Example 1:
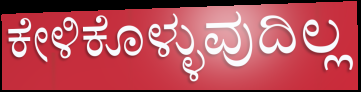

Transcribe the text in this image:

ಕೇಳಿಕೊಳ್ಳುವುದಿಲ್ಲ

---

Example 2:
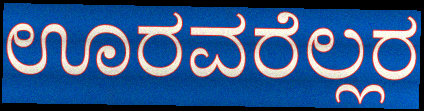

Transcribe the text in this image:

ಊರವರೆಲ್ಲರ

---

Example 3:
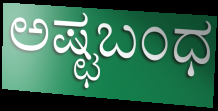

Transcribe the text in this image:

ಅಷ್ಟಬಂಧ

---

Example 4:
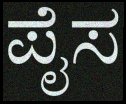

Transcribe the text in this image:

ಪೈಸ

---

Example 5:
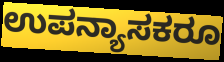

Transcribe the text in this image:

ಉಪನ್ಯಾಸಕರೂ